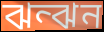
ঝন্ঝন